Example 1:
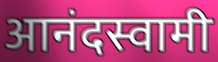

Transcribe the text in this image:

आनंदस्वामी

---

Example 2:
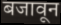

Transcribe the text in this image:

बजावून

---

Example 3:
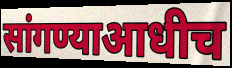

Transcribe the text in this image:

सांगण्याआधीच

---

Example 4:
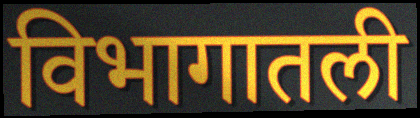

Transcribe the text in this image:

विभागातली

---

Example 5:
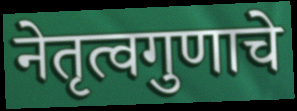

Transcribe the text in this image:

नेतृत्वगुणाचे